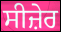
ਸੀਜ਼ੇਰ